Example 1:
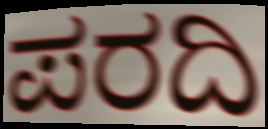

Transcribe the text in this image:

ಪರದಿ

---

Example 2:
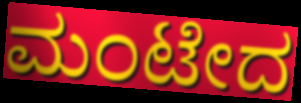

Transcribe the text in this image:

ಮಂಟೇದ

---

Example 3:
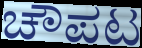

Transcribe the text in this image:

ಚೌಪಟ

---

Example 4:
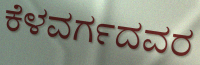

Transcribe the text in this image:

ಕೆಳವರ್ಗದವರ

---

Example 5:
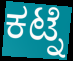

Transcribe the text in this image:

ಕಟ್ನೆ